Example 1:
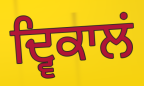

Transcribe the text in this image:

ਦ੍ਵਿਕਾਲਂ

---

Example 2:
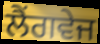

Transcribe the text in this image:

ਲੈਂਗਵੇਜ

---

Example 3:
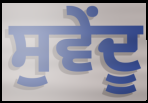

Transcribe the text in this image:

ਸੁਵੇਂਦੂ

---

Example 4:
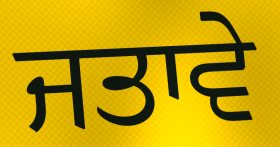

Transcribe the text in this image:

ਜਤਾਵੇ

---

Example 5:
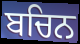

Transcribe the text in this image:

ਬਚਿਨ